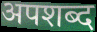
अपशब्द